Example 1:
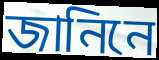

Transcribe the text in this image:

জানিনে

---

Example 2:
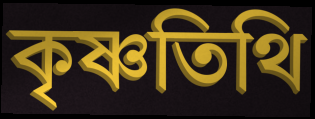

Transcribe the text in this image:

কৃষ্ণতিথি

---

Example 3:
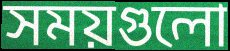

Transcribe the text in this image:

সময়গুলো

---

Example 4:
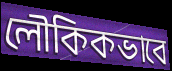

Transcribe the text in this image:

লৌকিকভাবে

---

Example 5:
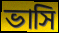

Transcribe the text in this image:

ভাসি